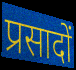
प्रसादों